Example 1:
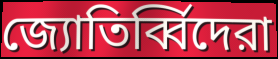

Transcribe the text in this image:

জ্যোতির্ব্বিদেরা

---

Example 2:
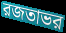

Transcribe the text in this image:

রজতাভর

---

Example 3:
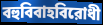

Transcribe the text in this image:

বহুবিবাহবিরোধী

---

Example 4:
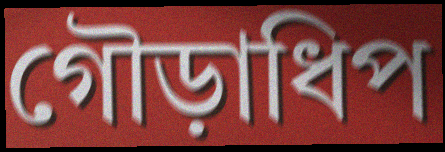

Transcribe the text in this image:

গৌড়াধিপ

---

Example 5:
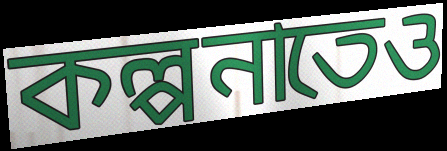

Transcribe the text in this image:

কল্পনাতেও